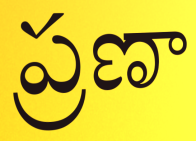
ప్రణా